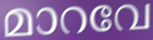
മാറവേ